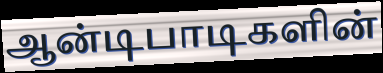
ஆன்டிபாடிகளின்